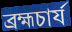
ব্রহ্মচার্য